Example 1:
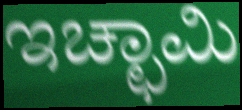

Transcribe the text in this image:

ಇಚ್ಛಾಮಿ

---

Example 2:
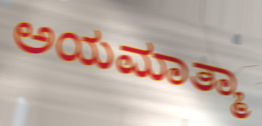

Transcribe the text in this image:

ಅಯಮಾತ್ಮಾ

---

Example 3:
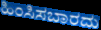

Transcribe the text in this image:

ಹಿಂಸಿಸಬಾರದು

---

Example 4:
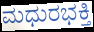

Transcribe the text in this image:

ಮಧುರಭಕ್ತಿ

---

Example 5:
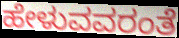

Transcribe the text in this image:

ಹೇಳುವವರಂತೆ